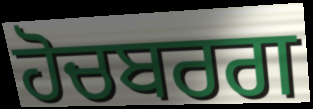
ਹੋਚਬਰਗ